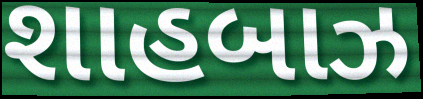
શાહબાઝ